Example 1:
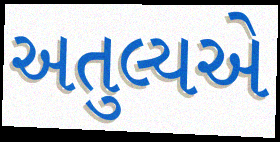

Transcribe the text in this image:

અતુલ્યએ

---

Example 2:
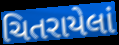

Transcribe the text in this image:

ચિતરાયેલાં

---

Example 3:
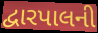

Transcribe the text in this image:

દ્વારપાલની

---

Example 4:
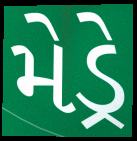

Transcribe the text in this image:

મેડ્રે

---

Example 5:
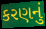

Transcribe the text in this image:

કરણનું